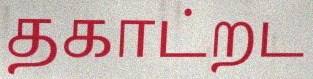
தகாட்றட